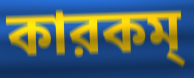
কারকম্